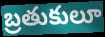
బ్రతుకులూ